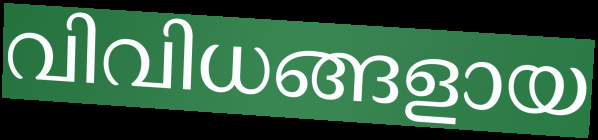
വിവിധങ്ങളായ